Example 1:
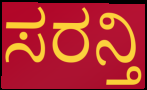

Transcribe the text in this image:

ಸರನ್ತಿ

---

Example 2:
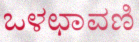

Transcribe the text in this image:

ಒಳಛಾವಣಿ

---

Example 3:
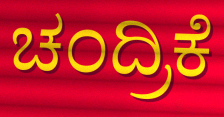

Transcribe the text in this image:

ಚಂದ್ರಿಕೆ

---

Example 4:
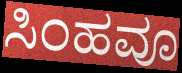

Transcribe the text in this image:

ಸಿಂಹವೂ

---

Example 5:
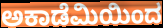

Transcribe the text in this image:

ಅಕಾಡೆಮಿಯಿಂದ